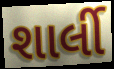
શાર્લી